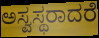
ಅಸ್ವಸ್ಥರಾದರೆ